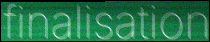
finalisation